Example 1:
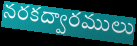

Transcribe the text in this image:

నరకద్వారములు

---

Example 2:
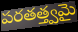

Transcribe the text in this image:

పరతత్త్వమై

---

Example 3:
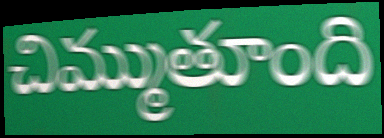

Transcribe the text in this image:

చిమ్ముతూంది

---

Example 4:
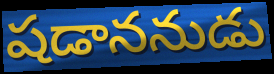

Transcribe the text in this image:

షడాననుడు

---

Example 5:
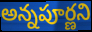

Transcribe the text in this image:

అన్నపూర్ణని